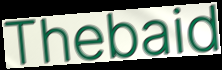
Thebaid